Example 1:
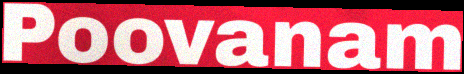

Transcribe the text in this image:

Poovanam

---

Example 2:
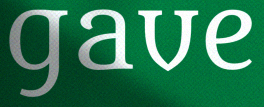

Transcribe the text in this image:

gaue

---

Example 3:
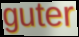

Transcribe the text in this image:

guter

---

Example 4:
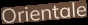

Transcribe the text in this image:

Orientale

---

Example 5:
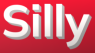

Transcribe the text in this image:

Silly